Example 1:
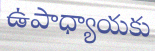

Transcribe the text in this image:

ఉపాధ్యాయకు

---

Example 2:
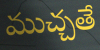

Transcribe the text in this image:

ముచ్చతే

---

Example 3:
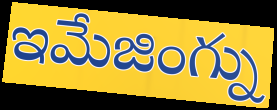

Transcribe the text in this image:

ఇమేజింగ్ను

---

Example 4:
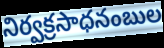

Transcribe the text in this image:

నిర్వక్రసాధనంబుల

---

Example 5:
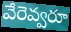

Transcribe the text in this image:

వేరెవ్వరూ